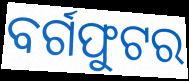
ବର୍ଗଫୁଟର